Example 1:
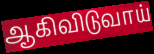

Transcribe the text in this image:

ஆகிவிடுவாய்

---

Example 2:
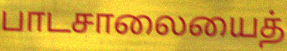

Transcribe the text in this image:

பாடசாலையைத்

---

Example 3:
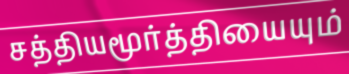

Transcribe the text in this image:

சத்தியமூர்த்தியையும்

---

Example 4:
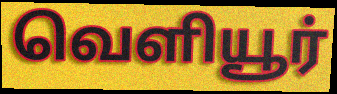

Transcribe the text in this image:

வெளியூர்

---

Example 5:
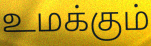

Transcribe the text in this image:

உமக்கும்